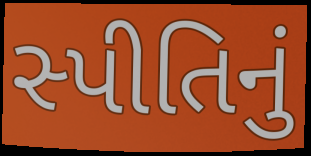
સ્પીતિનું